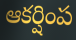
ఆకర్షింప